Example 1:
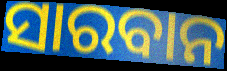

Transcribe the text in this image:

ସାରବାନ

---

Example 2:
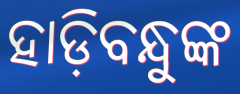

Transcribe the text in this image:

ହାଡ଼ିବନ୍ଧୁଙ୍କ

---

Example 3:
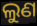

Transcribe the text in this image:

ଲୁଣ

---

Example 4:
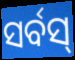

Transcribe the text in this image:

ସର୍ବସ୍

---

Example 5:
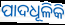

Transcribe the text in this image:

ପାଦଧୂଳିକି